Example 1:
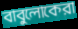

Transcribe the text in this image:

বাবুলোকেরা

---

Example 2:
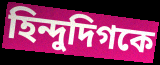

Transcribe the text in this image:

হিন্দুদিগকে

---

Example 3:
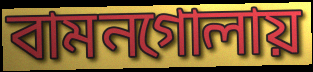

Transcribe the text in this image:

বামনগোলায়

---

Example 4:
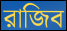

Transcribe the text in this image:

রাজিব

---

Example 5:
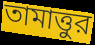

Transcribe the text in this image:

তামাত্তুর